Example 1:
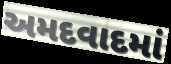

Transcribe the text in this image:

અમદવાદમાં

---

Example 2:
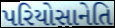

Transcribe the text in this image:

પરિયોસાનેતિ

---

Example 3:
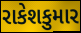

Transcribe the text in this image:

રાકેશકુમાર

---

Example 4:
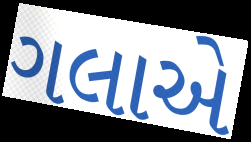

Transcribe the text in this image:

ગલાએ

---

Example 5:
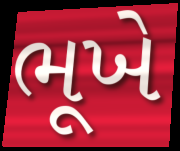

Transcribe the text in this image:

ભૂખે